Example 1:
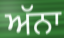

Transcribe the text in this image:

ਅੱਨਾ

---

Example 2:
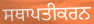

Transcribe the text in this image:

ਸਥਾਪਤੀਕਰਨ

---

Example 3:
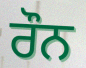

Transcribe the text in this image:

ਰੌਨ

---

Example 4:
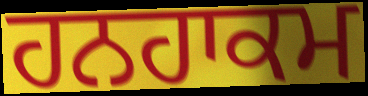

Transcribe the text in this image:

ਹਨਹਾਕਮ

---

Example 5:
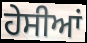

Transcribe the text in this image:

ਹੇਸੀਆਂ